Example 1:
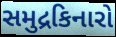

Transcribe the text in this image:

સમુદ્રકિનારો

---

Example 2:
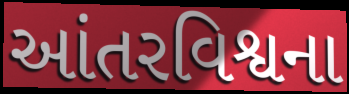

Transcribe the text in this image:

આંતરવિશ્વના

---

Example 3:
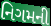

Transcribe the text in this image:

નિગમની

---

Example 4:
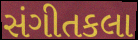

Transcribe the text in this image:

સંગીતકલા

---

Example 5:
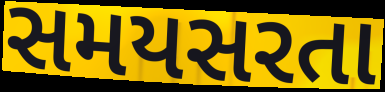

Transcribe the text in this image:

સમયસરતા